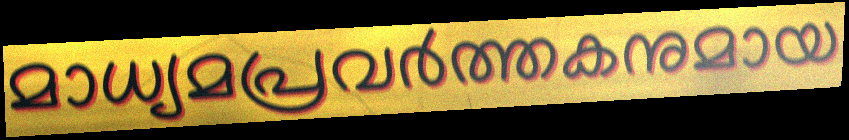
മാധ്യമപ്രവർത്തകനുമായ